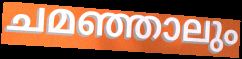
ചമഞ്ഞാലും